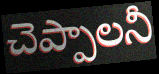
చెప్పాలనీ